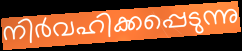
നിർവഹിക്കപ്പെടുന്നു